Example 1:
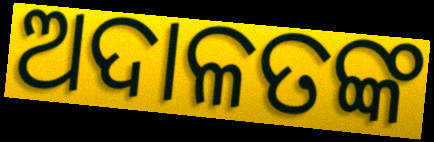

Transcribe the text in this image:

ଅଦାଳତଙ୍କ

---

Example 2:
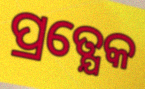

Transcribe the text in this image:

ପ୍ରତ୍ଯେକ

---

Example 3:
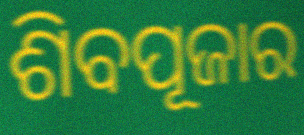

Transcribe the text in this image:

ଶିବପୂଜାର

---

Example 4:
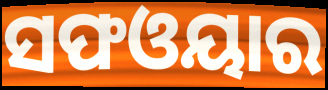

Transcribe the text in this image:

ସଫଓୟାର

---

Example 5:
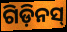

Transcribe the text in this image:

ଗିଡ଼ିନସ୍